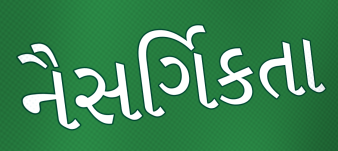
નૈસર્ગિકતા